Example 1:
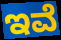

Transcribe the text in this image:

ಇವೆ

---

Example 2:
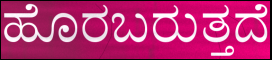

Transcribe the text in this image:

ಹೊರಬರುತ್ತದೆ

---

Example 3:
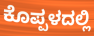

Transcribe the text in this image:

ಕೊಪ್ಪಳದಲ್ಲಿ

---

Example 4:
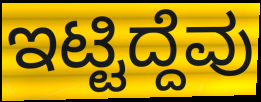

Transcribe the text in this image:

ಇಟ್ಟಿದ್ದೆವು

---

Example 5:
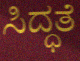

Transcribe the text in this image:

ಸಿದ್ಧತೆ